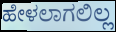
ಹೇಳಲಾಗಲಿಲ್ಲ